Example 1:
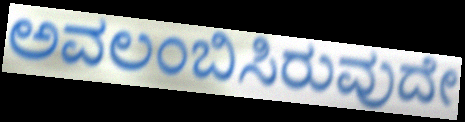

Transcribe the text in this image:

ಅವಲಂಬಿಸಿರುವುದೇ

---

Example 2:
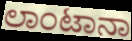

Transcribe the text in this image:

ಲಾಂಟಾನಾ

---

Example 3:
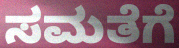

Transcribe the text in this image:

ಸಮತೆಗೆ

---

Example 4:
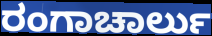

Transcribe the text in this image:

ರಂಗಾಚಾರ್ಲು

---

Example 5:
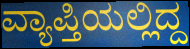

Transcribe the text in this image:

ವ್ಯಾಪ್ತಿಯಲ್ಲಿದ್ದ